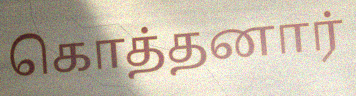
கொத்தனார்